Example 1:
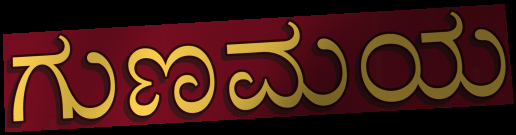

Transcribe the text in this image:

ಗುಣಮಯ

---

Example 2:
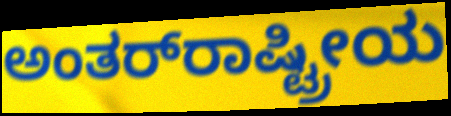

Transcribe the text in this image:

ಅಂತರ್‌ರಾಷ್ಟ್ರೀಯ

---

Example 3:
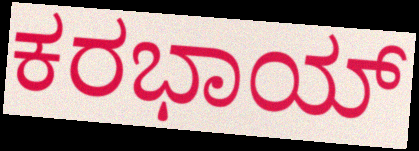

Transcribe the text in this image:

ಕರಭಾಯ್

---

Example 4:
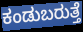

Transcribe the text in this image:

ಕಂಡುಬರುತ್ತೆ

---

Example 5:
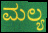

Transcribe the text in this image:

ಮಲ್ಯ